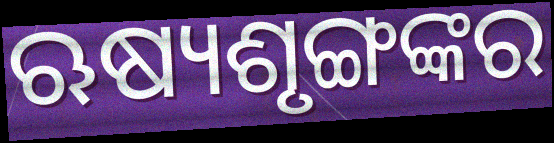
ଋଷ୍ୟଶୃଙ୍ଗଙ୍କର